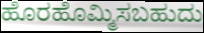
ಹೊರಹೊಮ್ಮಿಸಬಹುದು